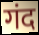
गंद